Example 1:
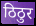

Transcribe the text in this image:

ठिठुर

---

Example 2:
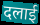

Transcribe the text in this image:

दलाई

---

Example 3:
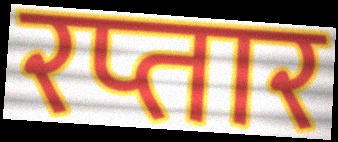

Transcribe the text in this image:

रप्तार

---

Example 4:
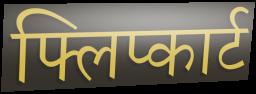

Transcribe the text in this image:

फ्लिप्कार्ट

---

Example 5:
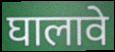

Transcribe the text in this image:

घालावे